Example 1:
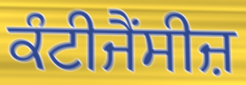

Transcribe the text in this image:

ਕੰਟੀਜੈਂਸੀਜ਼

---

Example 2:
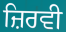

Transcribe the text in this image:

ਜ਼ਿਰਵੀ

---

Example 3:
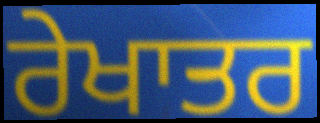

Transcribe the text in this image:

ਰੇਖਾਤਰ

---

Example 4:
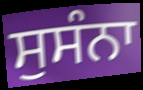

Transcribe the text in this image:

ਸੁਸੰਨਾ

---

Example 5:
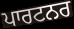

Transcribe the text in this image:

ਪਾਰਟਨਰ